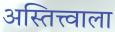
अस्तित्त्वाला